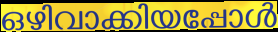
ഒഴിവാക്കിയപ്പോൾ